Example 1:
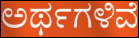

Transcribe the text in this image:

ಅರ್ಥಗಳಿವೆ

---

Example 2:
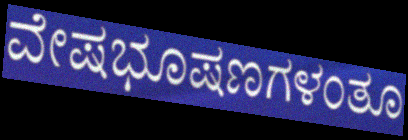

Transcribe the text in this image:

ವೇಷಭೂಷಣಗಳಂತೂ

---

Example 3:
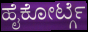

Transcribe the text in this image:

ಹೈಕೋರ್ಟ್ಗೆ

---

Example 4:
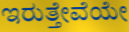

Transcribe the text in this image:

ಇರುತ್ತೇವೆಯೇ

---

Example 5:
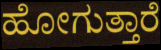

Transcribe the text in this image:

ಹೋಗುತ್ತಾರೆ